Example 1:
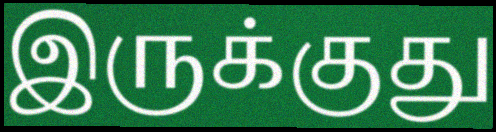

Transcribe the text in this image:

இருக்குது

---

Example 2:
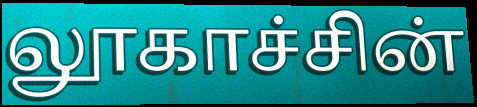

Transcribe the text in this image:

லூகாச்சின்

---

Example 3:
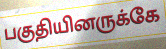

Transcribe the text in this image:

பகுதியினருக்கே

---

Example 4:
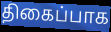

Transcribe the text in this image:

திகைப்பாக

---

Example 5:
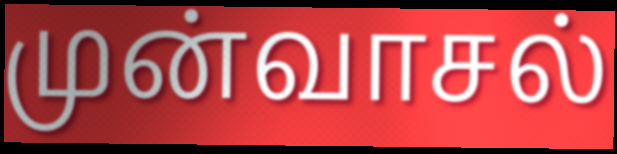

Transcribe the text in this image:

முன்வாசல்